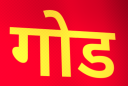
गोड